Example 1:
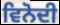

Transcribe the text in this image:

ਵਿਨੋਦੀ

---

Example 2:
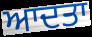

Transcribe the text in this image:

ਆਦਤਾ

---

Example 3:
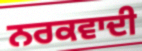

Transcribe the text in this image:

ਨਰਕਵਾਦੀ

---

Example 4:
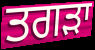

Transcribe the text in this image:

ਤਗੜਾ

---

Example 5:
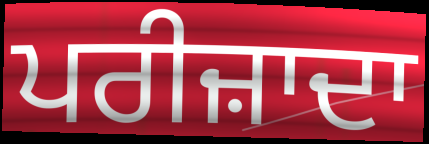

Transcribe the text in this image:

ਪਰੀਜ਼ਾਦਾ